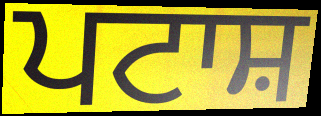
ਪਟਾਸ਼